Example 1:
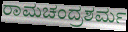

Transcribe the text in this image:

ರಾಮಚಂದ್ರಶರ್ಮ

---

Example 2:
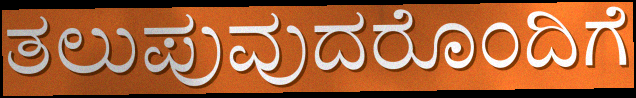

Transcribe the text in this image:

ತಲುಪುವುದರೊಂದಿಗೆ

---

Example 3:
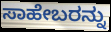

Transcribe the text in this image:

ಸಾಹೇಬರನ್ನು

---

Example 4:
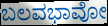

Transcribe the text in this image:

ಬಲವಭಾವೋ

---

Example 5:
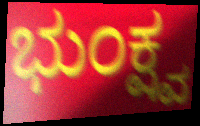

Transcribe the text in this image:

ಭುಂಕ್ಷ್ವ